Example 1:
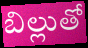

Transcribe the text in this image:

బిల్లుతో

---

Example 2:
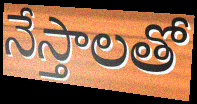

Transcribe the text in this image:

నేస్తాలతో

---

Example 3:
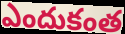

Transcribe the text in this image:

ఎందుకంత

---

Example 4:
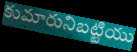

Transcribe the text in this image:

కుమారునిబట్టియు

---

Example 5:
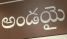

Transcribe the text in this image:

అండయై